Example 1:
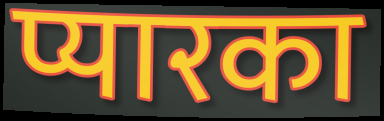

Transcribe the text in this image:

प्यारका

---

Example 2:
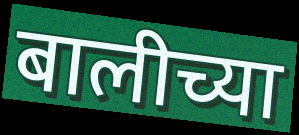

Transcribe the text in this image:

बालीच्या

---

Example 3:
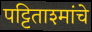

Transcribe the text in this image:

पट्टिताश्मांचे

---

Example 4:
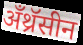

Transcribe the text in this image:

अँथ्रॅसीन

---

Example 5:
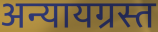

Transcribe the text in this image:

अन्यायग्रस्त